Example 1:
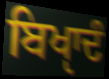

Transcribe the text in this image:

ਬਿਖੵਾਦੰ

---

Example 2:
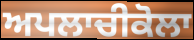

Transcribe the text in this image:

ਅਪਲਾਚੀਕੋਲਾ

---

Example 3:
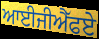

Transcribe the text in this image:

ਆਈਜੀਐੱਫਏ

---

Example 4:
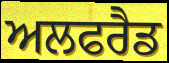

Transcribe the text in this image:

ਅਲਫਰੈਡ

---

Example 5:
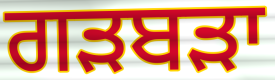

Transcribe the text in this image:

ਗੜਬੜਾ